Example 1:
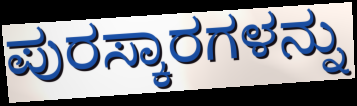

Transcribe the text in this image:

ಪುರಸ್ಕಾರಗಳನ್ನು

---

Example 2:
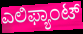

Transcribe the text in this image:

ಎಲಿಫ್ಯಾಂಟ್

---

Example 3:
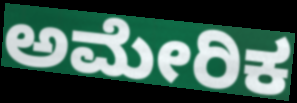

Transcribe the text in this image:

ಅಮೇರಿಕ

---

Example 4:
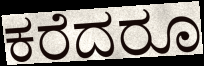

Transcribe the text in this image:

ಕರೆದರೂ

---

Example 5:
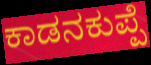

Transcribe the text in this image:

ಕಾಡನಕುಪ್ಪೆ